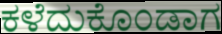
ಕಳೆದುಕೊಂಡಾಗ